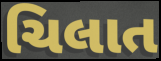
ચિલાત